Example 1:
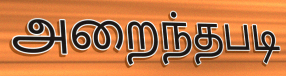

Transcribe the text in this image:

அறைந்தபடி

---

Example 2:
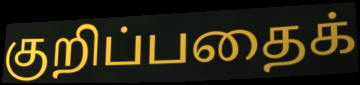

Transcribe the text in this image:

குறிப்பதைக்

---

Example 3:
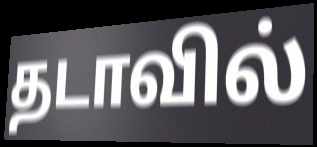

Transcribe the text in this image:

தடாவில்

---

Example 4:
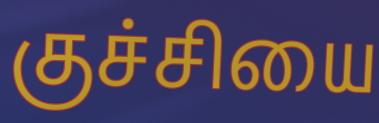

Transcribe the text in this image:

குச்சியை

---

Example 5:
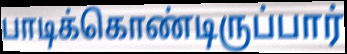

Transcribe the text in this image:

பாடிக்கொண்டிருப்பார்